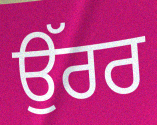
ਉੱਰਰ